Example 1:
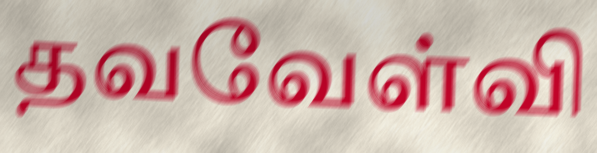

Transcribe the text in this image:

தவவேள்வி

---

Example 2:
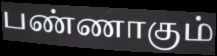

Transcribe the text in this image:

பண்ணாகும்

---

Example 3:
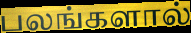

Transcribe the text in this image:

பலங்களால்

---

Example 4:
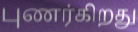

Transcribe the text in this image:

புணர்கிறது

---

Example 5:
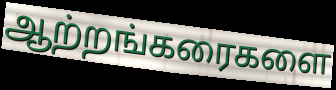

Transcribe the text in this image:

ஆற்றங்கரைகளை